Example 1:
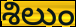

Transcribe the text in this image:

శిలుం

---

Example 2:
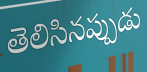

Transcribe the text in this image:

తెలిసినప్పుడు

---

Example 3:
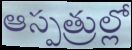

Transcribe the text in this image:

ఆస్పత్రుల్లో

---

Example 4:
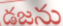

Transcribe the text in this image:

డజను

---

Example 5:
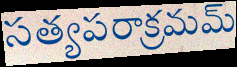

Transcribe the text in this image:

సత్యపరాక్రమమ్